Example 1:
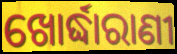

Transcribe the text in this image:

ଖୋର୍ଦ୍ଧାରାଣୀ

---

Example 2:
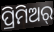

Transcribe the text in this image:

ପ୍ରିମିଅର୍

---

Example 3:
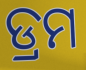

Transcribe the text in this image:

ଡ୍ରମ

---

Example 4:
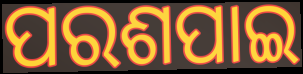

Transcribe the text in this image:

ପରଶପାଇ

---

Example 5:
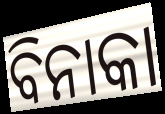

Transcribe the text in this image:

ବିନାକା